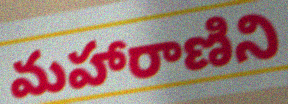
మహారాణిని